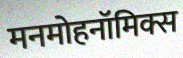
मनमोहनॉमिक्स